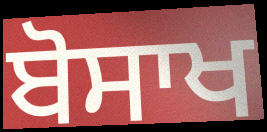
ਬੋਸਾਖ